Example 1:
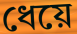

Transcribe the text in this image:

ধেয়ে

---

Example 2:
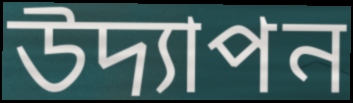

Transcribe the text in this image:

উদ্যাপন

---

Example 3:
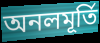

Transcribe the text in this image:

অনলমূর্তি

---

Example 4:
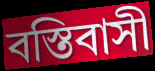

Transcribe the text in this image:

বস্তিবাসী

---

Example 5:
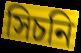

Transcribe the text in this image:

সিচনি